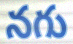
నగు